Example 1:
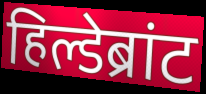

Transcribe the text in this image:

हिल्डेब्रांट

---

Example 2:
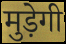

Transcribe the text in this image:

मुड़ेगी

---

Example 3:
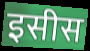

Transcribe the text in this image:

इसीस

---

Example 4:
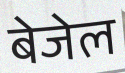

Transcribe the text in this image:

बेजेल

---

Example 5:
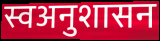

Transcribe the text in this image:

स्वअनुशासन